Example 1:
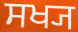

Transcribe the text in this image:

ਸਖ੍ਯ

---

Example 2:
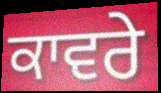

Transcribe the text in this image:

ਕਾਵਰੇ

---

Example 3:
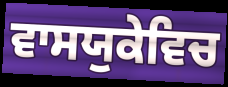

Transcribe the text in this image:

ਵਾਸਯੁਕੇਵਿਚ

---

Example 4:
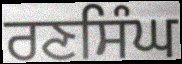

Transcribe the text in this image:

ਰਣਸਿੰਘ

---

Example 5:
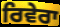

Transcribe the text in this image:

ਰਿਵੇਰਾ